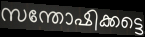
സന്തോഷിക്കട്ടെ